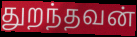
துறந்தவன்